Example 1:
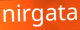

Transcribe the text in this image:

nirgata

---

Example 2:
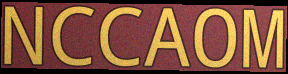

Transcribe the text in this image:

NCCAOM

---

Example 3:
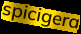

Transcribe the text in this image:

spicigera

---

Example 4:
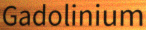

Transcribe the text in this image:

Gadolinium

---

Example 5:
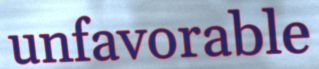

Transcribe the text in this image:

unfavorable